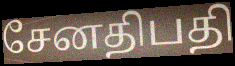
சேனதிபதி